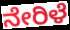
ನೇರಿಳೆ